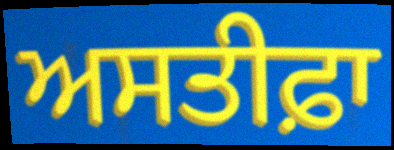
ਅਸਤੀਫ਼ਾ